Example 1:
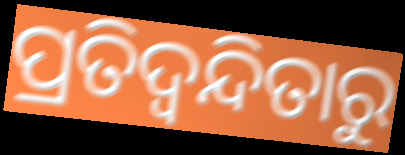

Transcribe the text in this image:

ପ୍ରତିଦ୍ୱନ୍ଦିତାରୁ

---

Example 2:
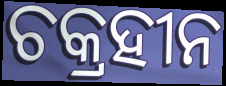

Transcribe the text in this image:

ଚକ୍ରହୀନ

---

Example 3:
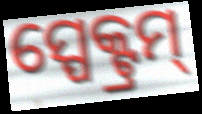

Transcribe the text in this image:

ସ୍ପେକ୍ଟ୍ରମ୍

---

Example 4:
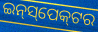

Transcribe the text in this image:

ଇନ୍‌ସ୍‌ପେକ୍‌ଟର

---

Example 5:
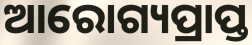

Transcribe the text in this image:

ଆରୋଗ୍ୟପ୍ରାପ୍ତ